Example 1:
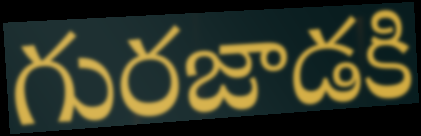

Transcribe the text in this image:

గురజాడకి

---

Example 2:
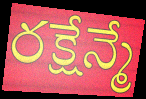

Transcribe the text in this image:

రక్షేన్మే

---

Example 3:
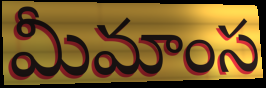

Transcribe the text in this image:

మీమాంస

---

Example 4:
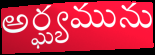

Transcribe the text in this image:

అర్ఘ్యమును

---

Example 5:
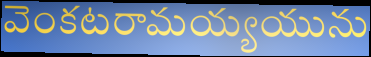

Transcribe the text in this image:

వెంకటరామయ్యయును